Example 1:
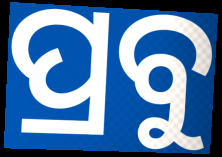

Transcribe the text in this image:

ପ୍ରବୁ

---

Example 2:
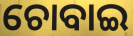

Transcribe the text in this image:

ଚୋବାଇ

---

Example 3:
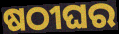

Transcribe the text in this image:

ଷଠୀଘର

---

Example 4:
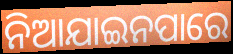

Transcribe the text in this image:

ନିଆଯାଇନପାରେ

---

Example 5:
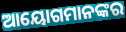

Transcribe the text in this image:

ଆୟୋଗମାନଙ୍କର